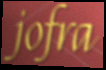
jofra